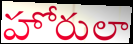
హోరులా